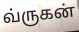
வ்ருகன்